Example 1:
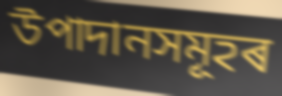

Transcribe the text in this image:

উপাদানসমূহৰ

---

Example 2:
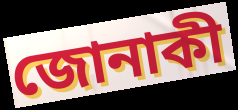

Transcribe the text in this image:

জোনাকী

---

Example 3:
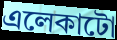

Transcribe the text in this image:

এলেকাটো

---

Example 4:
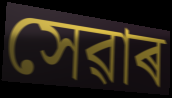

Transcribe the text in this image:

সেৱাৰ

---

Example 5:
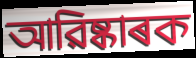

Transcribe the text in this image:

আৱিষ্কাৰক